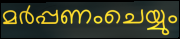
മർപ്പണംചെയ്യും